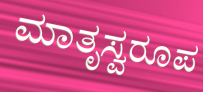
ಮಾತೃಸ್ವರೂಪ